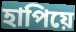
হাপিয়ে